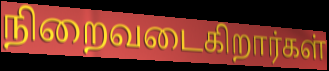
நிறைவடைகிறார்கள்